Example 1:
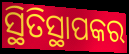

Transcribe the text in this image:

ସ୍ଥିତିସ୍ଥାପକର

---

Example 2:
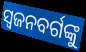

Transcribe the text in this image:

ସ୍ୱଜନବର୍ଗଙ୍କୁ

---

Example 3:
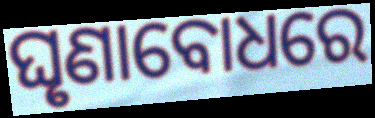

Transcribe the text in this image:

ଘୃଣାବୋଧରେ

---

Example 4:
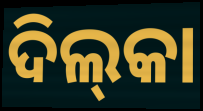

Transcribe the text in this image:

ଦିଲ୍‌କା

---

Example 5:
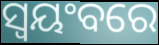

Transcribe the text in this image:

ସ୍ଵୟଂବରେ